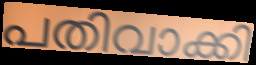
പതിവാക്കി